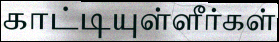
காட்டியுள்ளீர்கள்